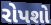
રોપશો